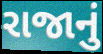
રાજાનું